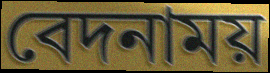
বেদনাময়